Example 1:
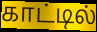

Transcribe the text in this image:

காட்டில்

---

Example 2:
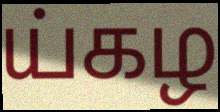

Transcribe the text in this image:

ய்கழ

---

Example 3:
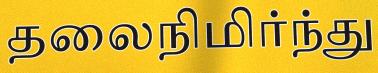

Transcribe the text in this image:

தலைநிமிர்ந்து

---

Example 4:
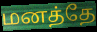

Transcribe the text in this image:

மனத்தே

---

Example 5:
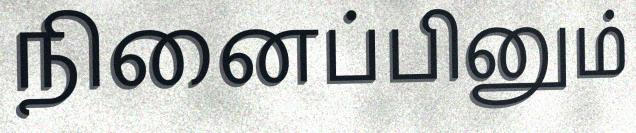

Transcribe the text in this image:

நினைப்பினும்